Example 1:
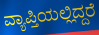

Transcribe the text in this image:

ವ್ಯಾಪ್ತಿಯಲ್ಲಿದ್ದರೆ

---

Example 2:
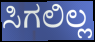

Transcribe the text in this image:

ಸಿಗಲಿಲ್ಲ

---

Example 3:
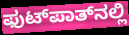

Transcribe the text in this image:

ಫುಟ್‌ಪಾತ್‌ನಲ್ಲಿ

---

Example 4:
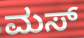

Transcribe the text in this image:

ಮಸ್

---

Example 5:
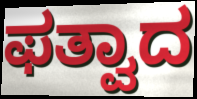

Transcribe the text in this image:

ಫತ್ವಾದ